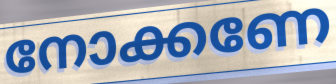
നോക്കണേ